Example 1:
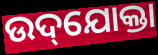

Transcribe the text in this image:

ଉଦ୍‌ଯୋକ୍ତା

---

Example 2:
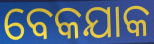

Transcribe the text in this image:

ବେକଯାକ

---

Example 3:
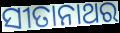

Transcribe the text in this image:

ସୀତାନାଥର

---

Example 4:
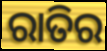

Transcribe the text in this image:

ରାତିର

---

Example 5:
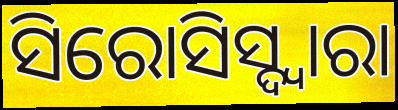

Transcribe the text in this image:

ସିରୋସିସ୍ଦ୍ୱାରା